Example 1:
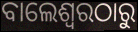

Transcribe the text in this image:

ବାଲେଶ୍ବରଠାରୁ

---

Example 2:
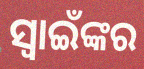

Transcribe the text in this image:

ସ୍ଵାଇଁଙ୍କର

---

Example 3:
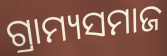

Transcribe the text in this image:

ଗ୍ରାମ୍ୟସମାଜ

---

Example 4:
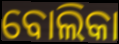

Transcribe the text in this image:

ବୋଲିକା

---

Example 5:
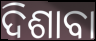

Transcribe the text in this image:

ଦିଶାବା